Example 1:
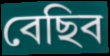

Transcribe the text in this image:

বেছিব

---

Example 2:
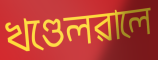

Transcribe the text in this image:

খণ্ডেলৱালে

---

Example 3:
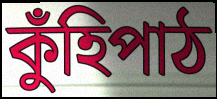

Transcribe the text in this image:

কুঁহিপাঠ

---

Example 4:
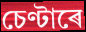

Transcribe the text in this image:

চেণ্টাৰে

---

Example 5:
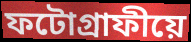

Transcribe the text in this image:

ফটোগ্ৰাফীয়ে